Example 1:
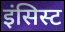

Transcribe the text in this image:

इंसिस्ट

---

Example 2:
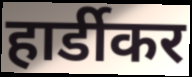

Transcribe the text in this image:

हार्डीकर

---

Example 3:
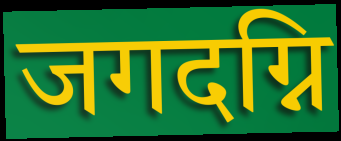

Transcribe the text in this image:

जगदग्नि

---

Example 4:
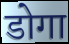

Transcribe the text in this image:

डोगा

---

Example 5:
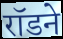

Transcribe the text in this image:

रॉडने